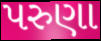
પરુણા